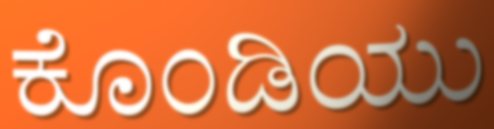
ಕೊಂಡಿಯು